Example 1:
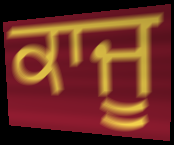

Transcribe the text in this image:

ਕਾਜੂ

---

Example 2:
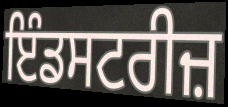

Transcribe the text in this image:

ਇੰਡਸਟਰੀਜ਼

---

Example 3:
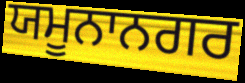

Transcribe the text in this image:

ਯਮੂਨਾਨਗਰ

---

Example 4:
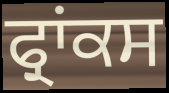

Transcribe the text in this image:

ਫ੍ਰਾਂਕਸ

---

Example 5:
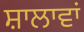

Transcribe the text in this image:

ਸ਼ਾਲਾਵਾਂ